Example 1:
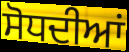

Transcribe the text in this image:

ਸੋਧਦੀਆਂ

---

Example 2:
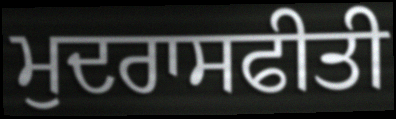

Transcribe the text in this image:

ਮੁਦਰਾਸਫੀਤੀ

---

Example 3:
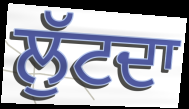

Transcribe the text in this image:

ਲੁੱਟਦਾ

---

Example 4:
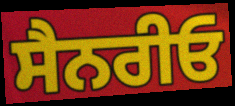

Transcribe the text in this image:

ਸੈਨਰੀਓ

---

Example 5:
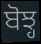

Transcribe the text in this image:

ਬੋਝ੍ਹ